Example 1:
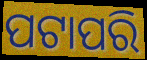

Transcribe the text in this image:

ପଟାପରି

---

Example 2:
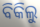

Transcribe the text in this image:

ବିକିଲୁ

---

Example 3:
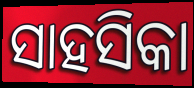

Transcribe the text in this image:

ସାହସିକା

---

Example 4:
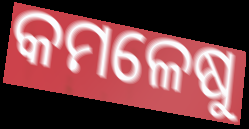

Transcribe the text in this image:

କମଳେଷୁ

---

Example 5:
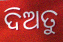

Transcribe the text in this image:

ଦିଅତୁ